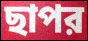
ছাপর